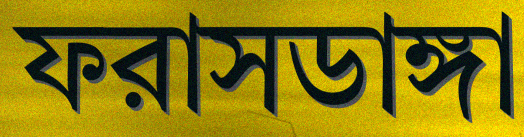
ফরাসডাঙ্গা